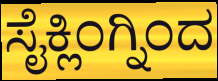
ಸೈಕ್ಲಿಂಗ್ನಿಂದ